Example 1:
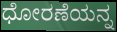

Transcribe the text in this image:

ಧೋರಣೆಯನ್ನ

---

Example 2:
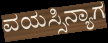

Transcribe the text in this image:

ವಯಸ್ಸಿನ್ಯಾಗ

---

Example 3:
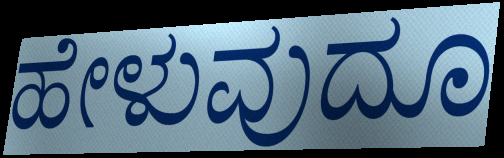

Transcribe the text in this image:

ಹೇಳುವುದೂ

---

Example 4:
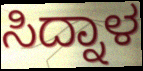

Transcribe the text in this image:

ಸಿದ್ನಾಳ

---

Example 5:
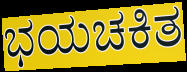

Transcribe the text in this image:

ಭಯಚಕಿತ